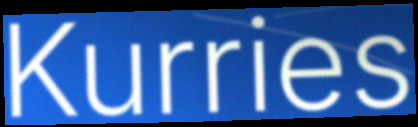
Kurries